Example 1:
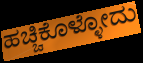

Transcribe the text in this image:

ಹಚ್ಚಿಕೊಳ್ಳೋದು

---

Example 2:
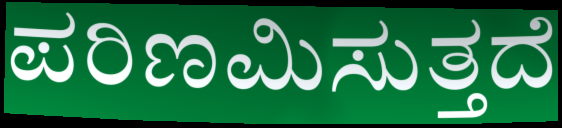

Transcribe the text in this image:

ಪರಿಣಮಿಸುತ್ತದೆ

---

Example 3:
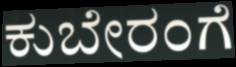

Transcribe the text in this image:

ಕುಬೇರಂಗೆ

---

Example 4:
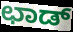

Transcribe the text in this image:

ಛಾಡ್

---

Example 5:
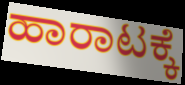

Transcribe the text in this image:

ಹಾರಾಟಕ್ಕೆ